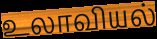
உலாவியல்